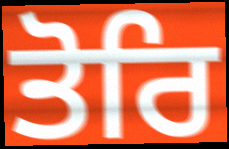
ਤੋਰਿ